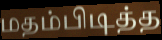
மதம்பிடித்த